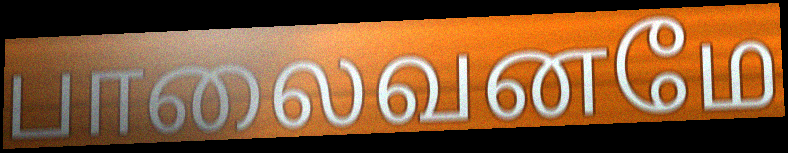
பாலைவனமே